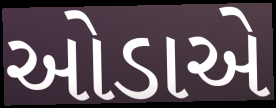
ઓડાએ